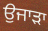
ਉਜਾੜਾ